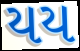
યય